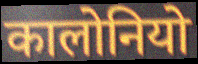
कालोनियो